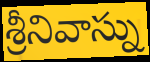
శ్రీనివాస్ను